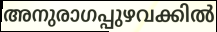
അനുരാഗപ്പുഴവക്കിൽ